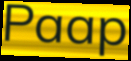
Paap